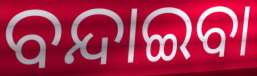
ବନ୍ଦାଇବା